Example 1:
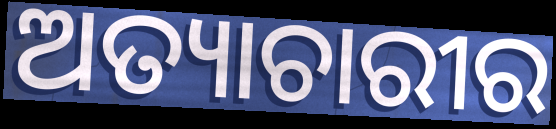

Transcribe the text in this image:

ଅତ୍ୟାଚାରୀର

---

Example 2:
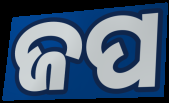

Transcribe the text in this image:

ଜପ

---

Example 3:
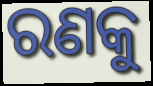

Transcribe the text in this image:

ରଣକୁ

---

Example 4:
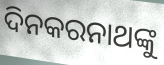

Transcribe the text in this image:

ଦିନକରନାଥଙ୍କୁ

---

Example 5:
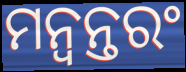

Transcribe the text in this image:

ମନ୍ବନ୍ତରଂ